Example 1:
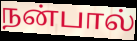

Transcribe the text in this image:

நன்பால்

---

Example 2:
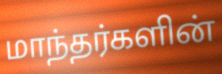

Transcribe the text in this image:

மாந்தர்களின்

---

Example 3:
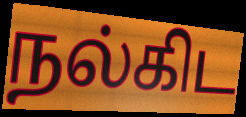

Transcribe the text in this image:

நல்கிட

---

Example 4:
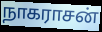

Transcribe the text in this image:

நாகராசன்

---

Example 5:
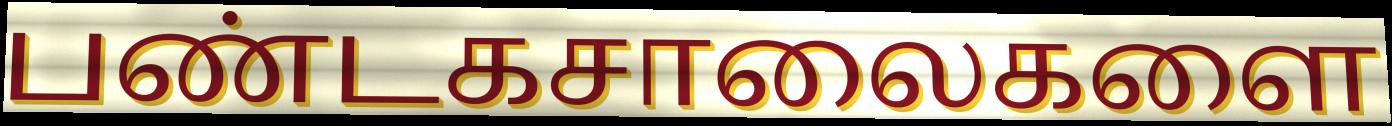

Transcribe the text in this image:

பண்டகசாலைகளை